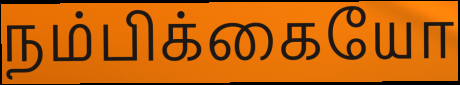
நம்பிக்கையோ